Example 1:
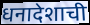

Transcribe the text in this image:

धनादेशाची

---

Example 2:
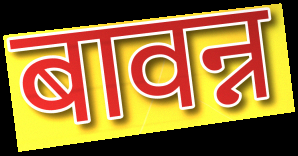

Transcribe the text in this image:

बावन्न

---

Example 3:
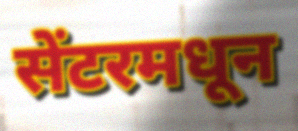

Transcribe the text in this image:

सेंटरमधून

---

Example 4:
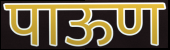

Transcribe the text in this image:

पाऊण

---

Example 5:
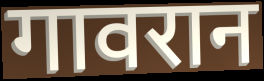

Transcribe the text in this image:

गावरान